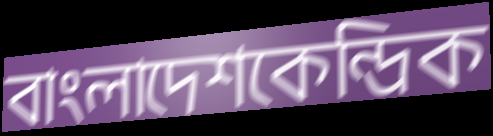
বাংলাদেশকেন্দ্রিক